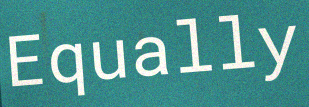
Equally